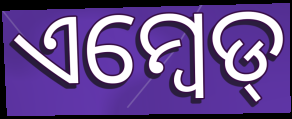
ଏମ୍ବେଡ୍